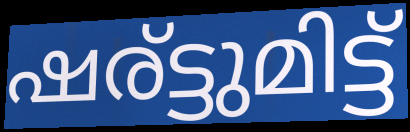
ഷര്ട്ടുമിട്ട്